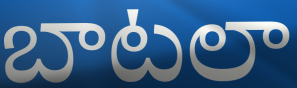
బాటలా